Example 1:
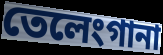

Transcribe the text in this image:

তেলেংগানা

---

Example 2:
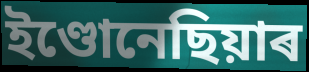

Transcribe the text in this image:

ইণ্ডোনেছিয়াৰ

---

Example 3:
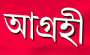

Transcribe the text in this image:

আগ্ৰহী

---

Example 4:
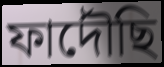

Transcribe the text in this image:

ফাৰ্দৌছি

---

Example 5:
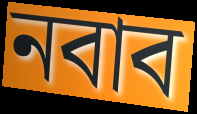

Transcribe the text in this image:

নবাব